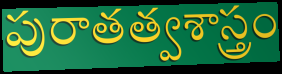
పురాతత్వశాస్త్రం